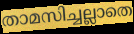
താമസിച്ചല്ലാതെ